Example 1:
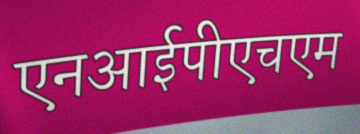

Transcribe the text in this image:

एनआईपीएचएम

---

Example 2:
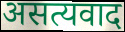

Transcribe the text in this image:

असत्यवाद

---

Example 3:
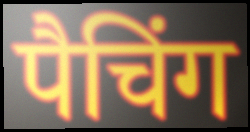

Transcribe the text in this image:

पैचिंग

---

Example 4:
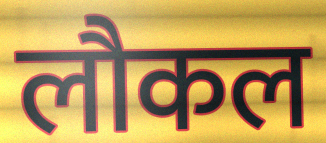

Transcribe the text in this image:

लौकल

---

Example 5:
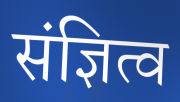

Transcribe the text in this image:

संज्ञित्व